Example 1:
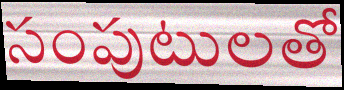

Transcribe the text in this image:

సంపుటులతో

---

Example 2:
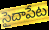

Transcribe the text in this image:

సైదాపేట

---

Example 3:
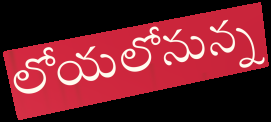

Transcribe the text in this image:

లోయలోనున్న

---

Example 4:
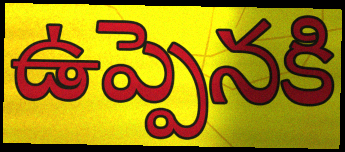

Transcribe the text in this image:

ఉప్పెనకి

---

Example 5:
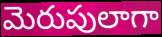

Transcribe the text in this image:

మెరుపులాగా